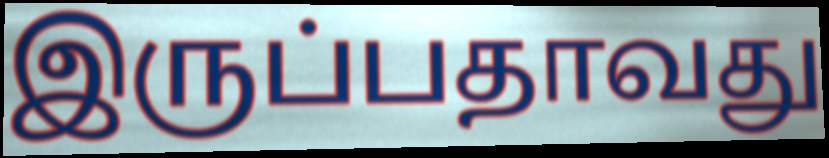
இருப்பதாவது